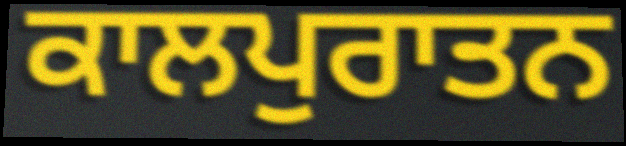
ਕਾਲਪੁਰਾਤਨ